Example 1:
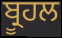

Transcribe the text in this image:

ਬ੍ਰੂਹਲ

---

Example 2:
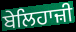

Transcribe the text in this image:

ਬੇਲਿਹਾਜ਼ੀ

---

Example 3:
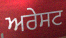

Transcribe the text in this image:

ਅਰੇਸਟ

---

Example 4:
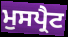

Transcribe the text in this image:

ਮੁਸਪ੍ਰੈਟ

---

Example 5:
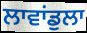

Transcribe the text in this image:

ਲਾਵਾਂਡੁਲਾ